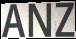
ANZ